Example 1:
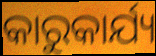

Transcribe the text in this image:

କାରୁକାର୍ଯ୍ୟ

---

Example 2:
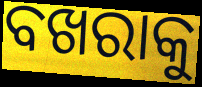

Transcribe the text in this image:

ବଖରାକୁ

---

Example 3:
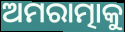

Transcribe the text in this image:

ଅମରାତ୍ମାକୁ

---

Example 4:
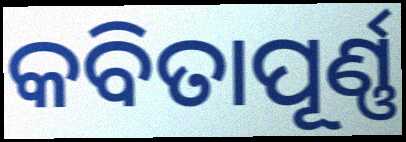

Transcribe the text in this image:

କବିତାପୂର୍ଣ୍ଣ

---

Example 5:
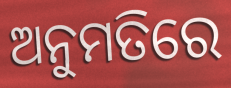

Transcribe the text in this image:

ଅନୁମତିରେ